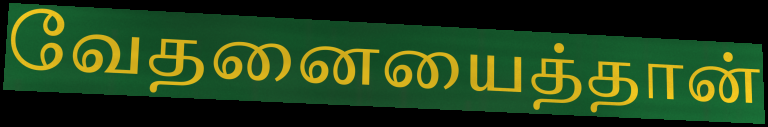
வேதனையைத்தான்